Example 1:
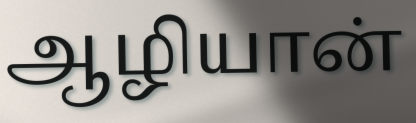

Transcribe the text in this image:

ஆழியான்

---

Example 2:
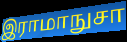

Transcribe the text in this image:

இராமாநுசா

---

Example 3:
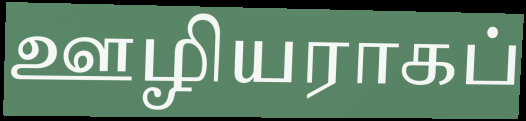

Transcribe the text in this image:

ஊழியராகப்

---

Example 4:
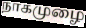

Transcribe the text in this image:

நாகமுழை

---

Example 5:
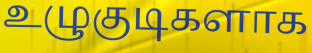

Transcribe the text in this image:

உழுகுடிகளாக